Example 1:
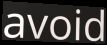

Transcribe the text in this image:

avoid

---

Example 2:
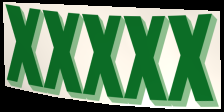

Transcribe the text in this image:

xxxxx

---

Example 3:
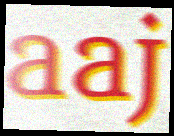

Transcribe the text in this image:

aaj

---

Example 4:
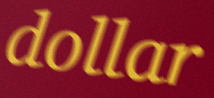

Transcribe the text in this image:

dollar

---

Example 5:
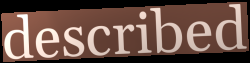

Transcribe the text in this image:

described